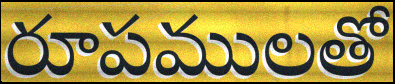
రూపములతో